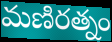
మణిరత్నం